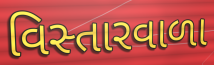
વિસ્તારવાળા